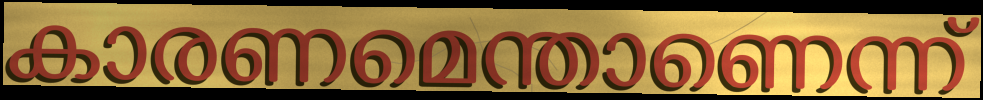
കാരണമെന്താണെന്ന്